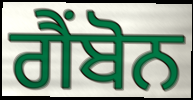
ਗੈਂਬੋਨ